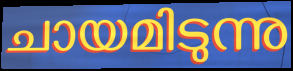
ചായമിടുന്നു